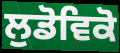
ਲੁਡੋਵਿਕੋ